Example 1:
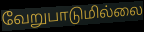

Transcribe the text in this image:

வேறுபாடுமில்லை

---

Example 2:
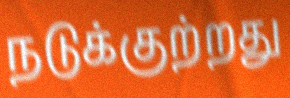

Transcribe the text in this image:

நடுக்குற்றது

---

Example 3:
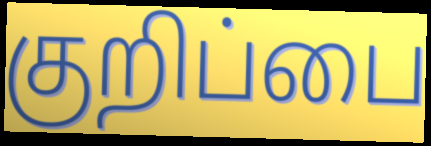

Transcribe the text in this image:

குறிப்பை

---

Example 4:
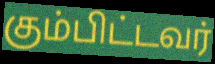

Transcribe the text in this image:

கும்பிட்டவர்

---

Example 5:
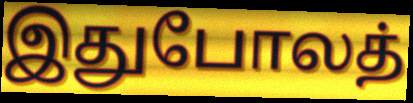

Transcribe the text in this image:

இதுபோலத்